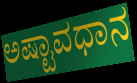
ಅಷ್ಟಾವಧಾನ